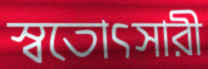
স্বতোৎসারী